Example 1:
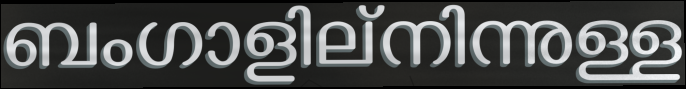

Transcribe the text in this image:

ബംഗാളില്നിന്നുള്ള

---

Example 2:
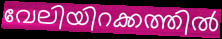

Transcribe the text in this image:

വേലിയിറക്കത്തിൽ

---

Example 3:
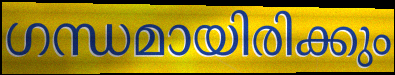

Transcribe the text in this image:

ഗന്ധമായിരിക്കും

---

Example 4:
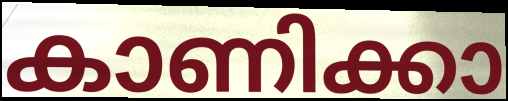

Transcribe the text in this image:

കാണിക്കാ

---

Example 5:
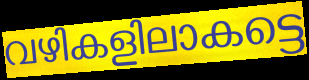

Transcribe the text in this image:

വഴികളിലാകട്ടെ